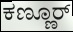
ಕಣ್ಣೂರ್